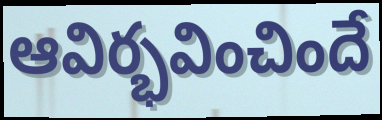
ఆవిర్భవించిందే